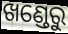
ଖଣ୍ଡେରୁ